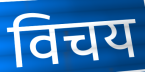
विचय